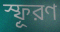
স্ফূরণ